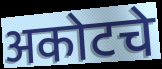
अकोटचे